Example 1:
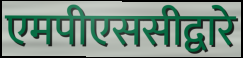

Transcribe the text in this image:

एमपीएससीद्वारे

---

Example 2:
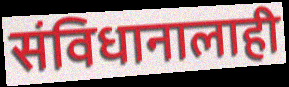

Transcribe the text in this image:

संविधानालाही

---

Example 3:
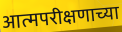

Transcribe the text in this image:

आत्मपरीक्षणाच्या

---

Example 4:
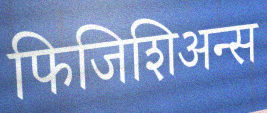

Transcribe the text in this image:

फिजिशिअन्स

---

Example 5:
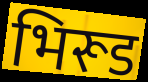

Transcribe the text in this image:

भिरूड